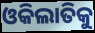
ଓକିଲାତିକୁ